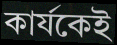
কার্যকেই